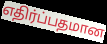
எதிர்ப்பதமான